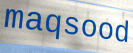
maqsood